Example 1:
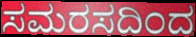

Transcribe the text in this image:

ಸಮರಸದಿಂದ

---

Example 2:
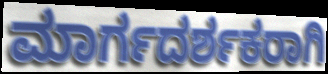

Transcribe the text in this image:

ಮಾರ್ಗದರ್ಶಕರಾಗಿ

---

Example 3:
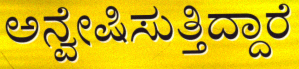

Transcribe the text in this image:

ಅನ್ವೇಷಿಸುತ್ತಿದ್ದಾರೆ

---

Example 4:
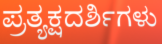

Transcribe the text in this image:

ಪ್ರತ್ಯಕ್ಷದರ್ಶಿಗಳು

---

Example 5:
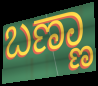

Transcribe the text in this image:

ಬಣ್ಣಾ